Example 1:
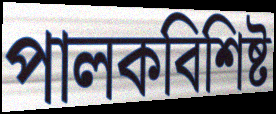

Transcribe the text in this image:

পালকবিশিষ্ট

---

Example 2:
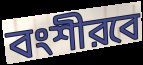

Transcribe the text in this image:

বংশীরবে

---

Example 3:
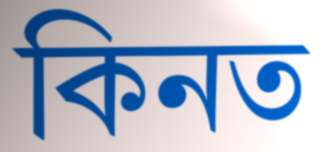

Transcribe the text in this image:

কিনত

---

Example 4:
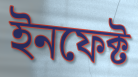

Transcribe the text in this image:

ইনফেক্ট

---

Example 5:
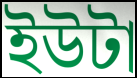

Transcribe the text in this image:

ইউটা